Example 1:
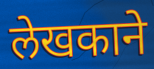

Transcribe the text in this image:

लेखकाने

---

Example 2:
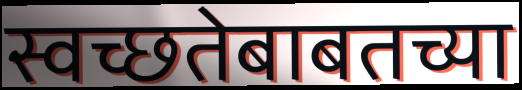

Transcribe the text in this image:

स्वच्छतेबाबतच्या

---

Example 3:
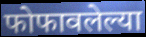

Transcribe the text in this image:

फोफावलेल्या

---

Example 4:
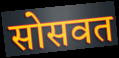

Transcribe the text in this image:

सोसवत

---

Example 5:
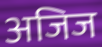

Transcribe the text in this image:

अजिज